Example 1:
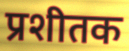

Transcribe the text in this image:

प्रशीतक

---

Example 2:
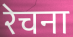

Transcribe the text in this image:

रेचना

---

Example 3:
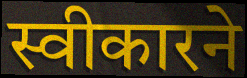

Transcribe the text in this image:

स्वीकारने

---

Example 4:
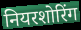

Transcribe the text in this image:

नियरशोरिंग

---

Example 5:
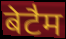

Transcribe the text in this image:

बेटैम